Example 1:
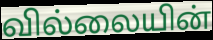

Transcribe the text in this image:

வில்லையின்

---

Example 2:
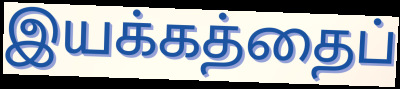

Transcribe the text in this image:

இயக்கத்தைப்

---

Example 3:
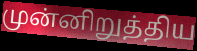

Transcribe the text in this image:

முன்னிறுத்திய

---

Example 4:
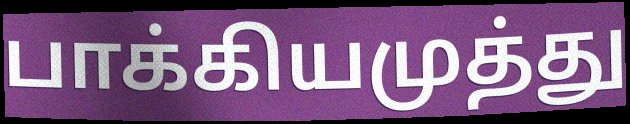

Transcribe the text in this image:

பாக்கியமுத்து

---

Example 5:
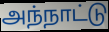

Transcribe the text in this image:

அந்நாட்டு